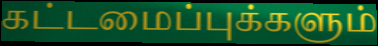
கட்டமைப்புக்களும்